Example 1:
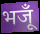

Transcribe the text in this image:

भजूँ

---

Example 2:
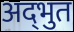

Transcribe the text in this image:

अद्‌भुत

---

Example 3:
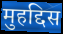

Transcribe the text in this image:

मुहद्दिस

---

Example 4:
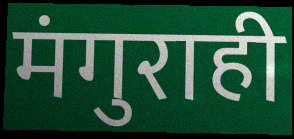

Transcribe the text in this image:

मंगुराही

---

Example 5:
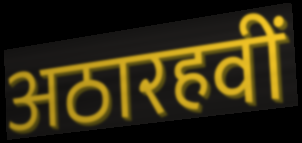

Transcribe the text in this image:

अठारहवीं